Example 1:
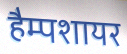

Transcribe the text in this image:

हैम्पशायर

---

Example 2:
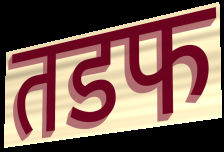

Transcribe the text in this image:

तडफ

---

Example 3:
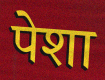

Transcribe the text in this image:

पेशा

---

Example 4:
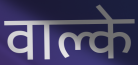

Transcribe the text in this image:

वाल्के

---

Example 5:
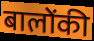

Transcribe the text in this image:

बालोंकी